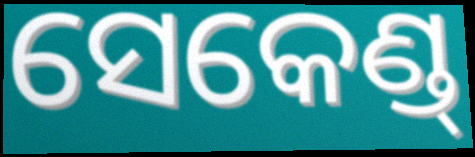
ସେକେଣ୍ଡ୍